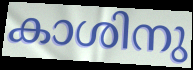
കാശിനു